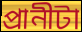
প্রানীটা